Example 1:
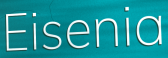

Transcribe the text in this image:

Eisenia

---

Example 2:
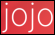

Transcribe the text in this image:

jojo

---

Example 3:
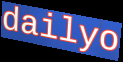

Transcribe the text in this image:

dailyo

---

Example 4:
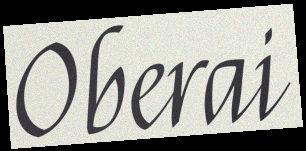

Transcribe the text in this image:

Oberai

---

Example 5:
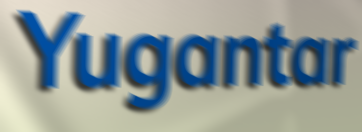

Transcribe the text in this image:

Yugantar